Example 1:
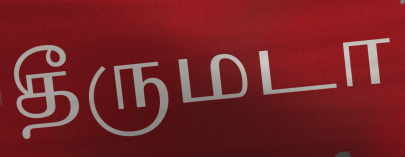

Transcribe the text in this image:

தீருமடா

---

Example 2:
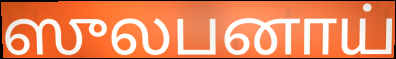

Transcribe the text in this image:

ஸுலபனாய்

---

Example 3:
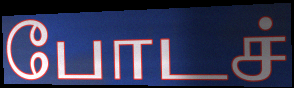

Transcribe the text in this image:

போடச்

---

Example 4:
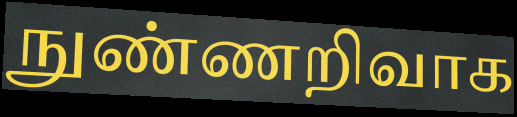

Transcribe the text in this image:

நுண்ணறிவாக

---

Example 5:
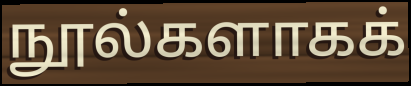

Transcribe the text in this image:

நூல்களாகக்